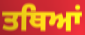
ਤਥਿਆਂ